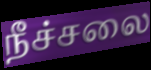
நீச்சலை